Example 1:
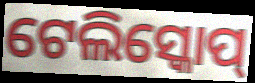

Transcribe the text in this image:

ଟେଲିସ୍କୋପ୍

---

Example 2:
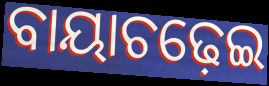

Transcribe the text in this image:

ବାୟାଚଢ଼େଇ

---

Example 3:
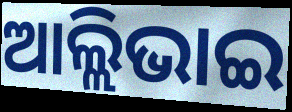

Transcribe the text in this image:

ଆଲ୍ଲିଭାଇ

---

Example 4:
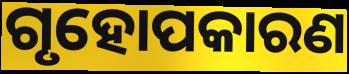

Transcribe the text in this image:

ଗୃହୋପକାରଣ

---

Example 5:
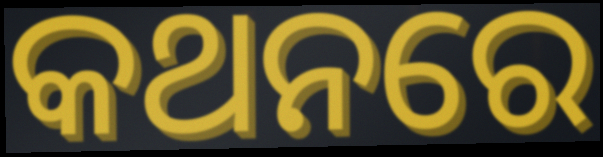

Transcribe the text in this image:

କଥନରେ